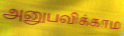
அனுபவிக்காம